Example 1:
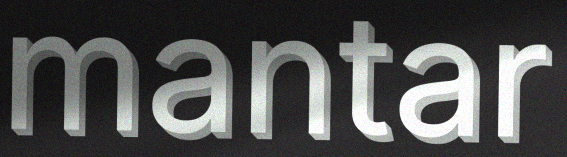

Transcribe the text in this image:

mantar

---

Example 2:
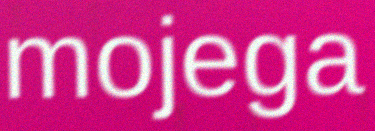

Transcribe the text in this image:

mojega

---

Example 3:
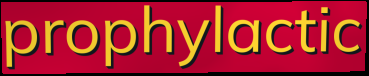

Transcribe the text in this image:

prophylactic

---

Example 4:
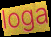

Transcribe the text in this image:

loga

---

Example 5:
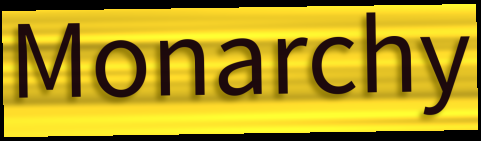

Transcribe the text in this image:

Monarchy